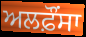
ਅਲਫ਼ੌਂਸਾ